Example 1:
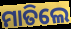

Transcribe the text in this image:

ମାତିଲେ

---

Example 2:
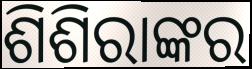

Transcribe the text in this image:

ଶିଶିରାଙ୍କର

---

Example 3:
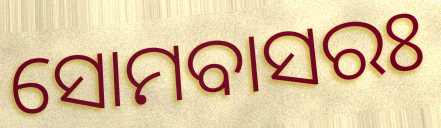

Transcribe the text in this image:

ସୋମବାସରଃ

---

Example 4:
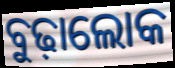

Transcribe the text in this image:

ବୁଢ଼ାଲୋକ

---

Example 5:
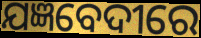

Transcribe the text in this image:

ଯଜ୍ଞବେଦୀରେ